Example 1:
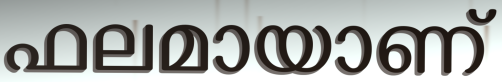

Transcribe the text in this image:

ഫലമായാണ്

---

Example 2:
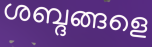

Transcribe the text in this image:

ശബ്ദങ്ങളെ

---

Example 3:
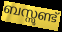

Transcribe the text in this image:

ബസ്സുണ്ട്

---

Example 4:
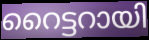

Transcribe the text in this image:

റൈട്ടറായി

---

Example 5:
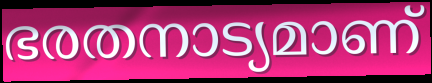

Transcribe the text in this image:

ഭരതനാട്യമാണ്